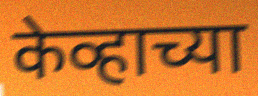
केव्हाच्या